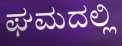
ಘಮದಲ್ಲಿ